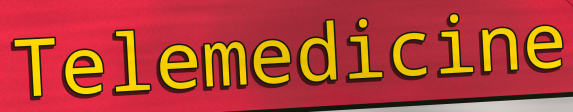
Telemedicine